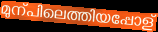
മുന്പിലെത്തിയപ്പോള്